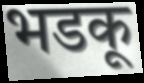
भडकू